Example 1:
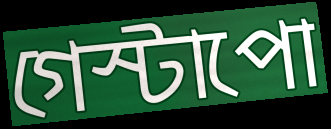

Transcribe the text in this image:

গেস্টাপো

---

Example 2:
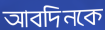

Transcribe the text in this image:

আবদিনকে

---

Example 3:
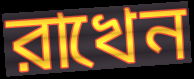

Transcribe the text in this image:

রাখেন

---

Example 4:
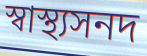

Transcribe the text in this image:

স্বাস্থ্যসনদ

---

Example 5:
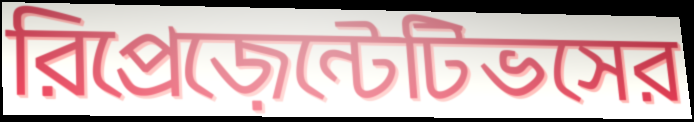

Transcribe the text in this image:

রিপ্রেজ়েন্টেটিভসের